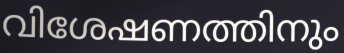
വിശേഷണത്തിനും